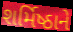
શર્મિષ્ઠાને